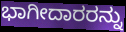
ಭಾಗೀದಾರರನ್ನು